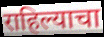
राहिल्याचा